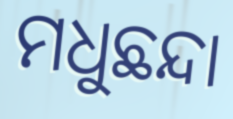
ମଧୁଛନ୍ଦା